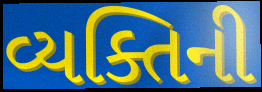
વ્યક્તિની